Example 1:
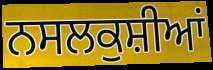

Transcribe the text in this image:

ਨਸਲਕੁਸ਼ੀਆਂ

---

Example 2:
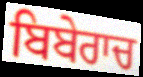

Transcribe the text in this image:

ਬਿਬੇਰਾਚ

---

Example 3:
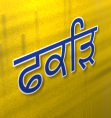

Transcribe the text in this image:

ਫਕੜਿ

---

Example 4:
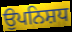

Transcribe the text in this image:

ਉਪਨਿਸ਼ਧ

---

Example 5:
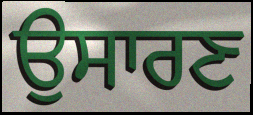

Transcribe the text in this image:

ਉਸਾਰਣ